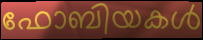
ഫോബിയകൾ